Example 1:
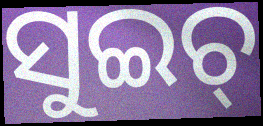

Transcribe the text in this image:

ସୁଇଚ୍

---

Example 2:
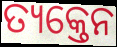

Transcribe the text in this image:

ତ୍ୟକ୍ତେନ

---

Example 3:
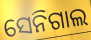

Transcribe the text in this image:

ସେନିଗାଲ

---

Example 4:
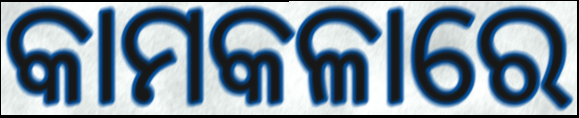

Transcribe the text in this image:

କାମକଳାରେ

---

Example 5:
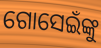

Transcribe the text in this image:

ଗୋସେଇଁଙ୍କୁ